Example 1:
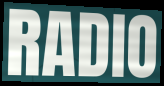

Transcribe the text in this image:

RADIO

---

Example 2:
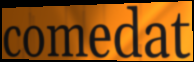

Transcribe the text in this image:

comedat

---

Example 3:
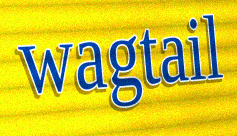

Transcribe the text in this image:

wagtail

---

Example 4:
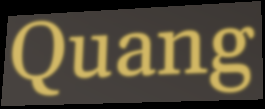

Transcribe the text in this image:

Quang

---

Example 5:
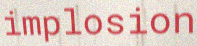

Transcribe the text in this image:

implosion